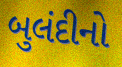
બુલંદીનો